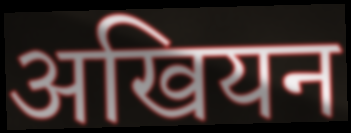
अखियन